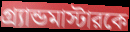
গ্র্যান্ডমাস্টারকে